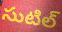
సుటిల్